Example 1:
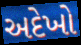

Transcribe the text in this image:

અદેખો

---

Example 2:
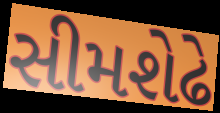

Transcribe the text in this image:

સીમશેઢે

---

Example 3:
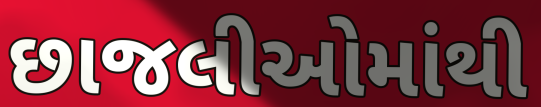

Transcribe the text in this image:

છાજલીઓમાંથી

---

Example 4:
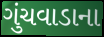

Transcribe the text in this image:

ગુંચવાડાના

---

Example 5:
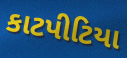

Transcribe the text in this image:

કાટપીટિયા